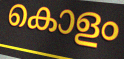
കൊളം